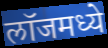
लॉजमध्ये